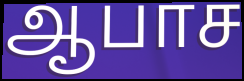
ஆபாச